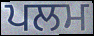
ਪਲਮ